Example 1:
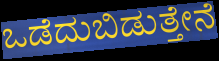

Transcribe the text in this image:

ಒಡೆದುಬಿಡುತ್ತೇನೆ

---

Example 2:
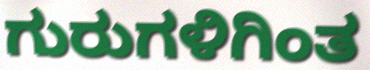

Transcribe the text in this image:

ಗುರುಗಳಿಗಿಂತ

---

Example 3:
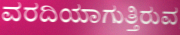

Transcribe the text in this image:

ವರದಿಯಾಗುತ್ತಿರುವ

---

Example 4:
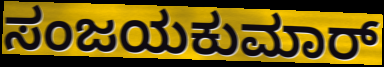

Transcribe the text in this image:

ಸಂಜಯಕುಮಾರ್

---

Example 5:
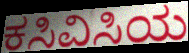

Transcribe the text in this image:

ಕಸಿವಿಸಿಯ